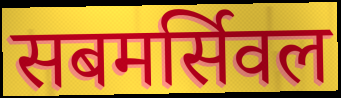
सबमर्सिवल